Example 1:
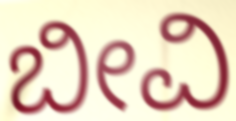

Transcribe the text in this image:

ಬೀವಿ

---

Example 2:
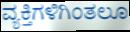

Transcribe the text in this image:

ವ್ಯಕ್ತಿಗಳಿಗಿಂತಲೂ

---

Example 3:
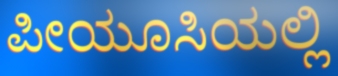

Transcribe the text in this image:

ಪೀಯೂಸಿಯಲ್ಲಿ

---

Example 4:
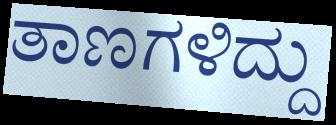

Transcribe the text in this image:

ತಾಣಗಳಿದ್ದು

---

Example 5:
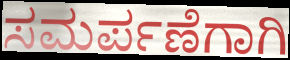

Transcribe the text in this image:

ಸಮರ್ಪಣೆಗಾಗಿ